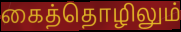
கைத்தொழிலும்